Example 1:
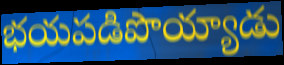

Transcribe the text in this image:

భయపడిపొయ్యాడు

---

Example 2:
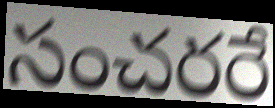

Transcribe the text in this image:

సంచరరే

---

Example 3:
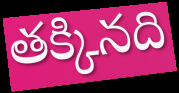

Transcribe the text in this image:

తక్కినది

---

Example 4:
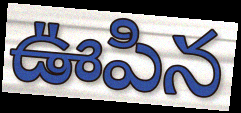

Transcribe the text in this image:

ఊపిన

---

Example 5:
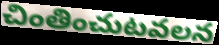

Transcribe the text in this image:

చింతించుటవలన